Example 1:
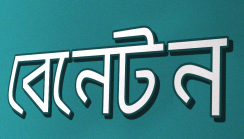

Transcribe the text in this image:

বেনেটন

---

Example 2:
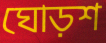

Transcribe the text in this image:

ঘোড়শ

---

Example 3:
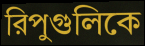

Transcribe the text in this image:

রিপুগুলিকে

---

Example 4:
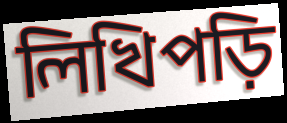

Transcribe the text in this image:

লিখিপড়ি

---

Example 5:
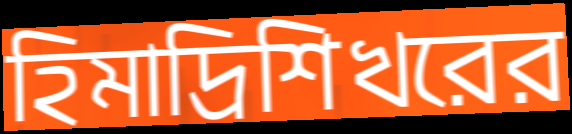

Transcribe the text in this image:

হিমাদ্রিশিখরের